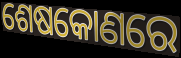
ଶେଷକୋଣରେ